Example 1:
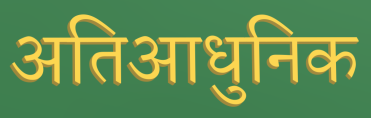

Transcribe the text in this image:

अतिआधुनिक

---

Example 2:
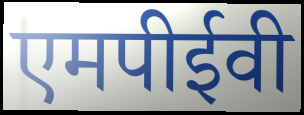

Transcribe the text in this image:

एमपीईवी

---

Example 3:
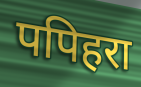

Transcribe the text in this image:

पपिहरा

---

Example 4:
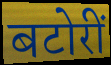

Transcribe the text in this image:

बटोरीं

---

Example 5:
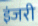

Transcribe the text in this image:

इंजरी